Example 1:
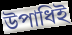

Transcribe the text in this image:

উপাধিই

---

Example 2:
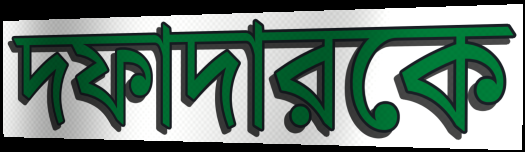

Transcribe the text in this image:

দফাদারকে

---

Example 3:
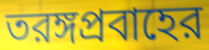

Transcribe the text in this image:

তরঙ্গপ্রবাহের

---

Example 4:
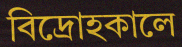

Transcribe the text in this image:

বিদ্রোহকালে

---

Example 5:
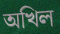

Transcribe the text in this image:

অখিল